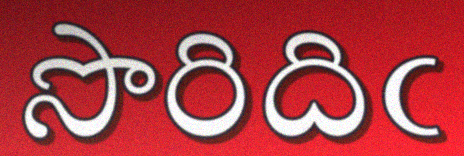
సొరిదిఁ